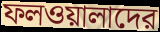
ফলওয়ালাদের